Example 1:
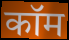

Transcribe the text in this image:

कॉम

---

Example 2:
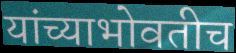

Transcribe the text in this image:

यांच्याभोवतीच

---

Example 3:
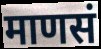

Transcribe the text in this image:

माणसं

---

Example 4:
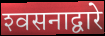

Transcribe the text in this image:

श्वसनाद्वारे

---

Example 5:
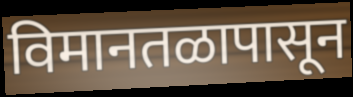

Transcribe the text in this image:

विमानतळापासून